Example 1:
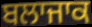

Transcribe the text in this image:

ਬਲਾਜਾਕ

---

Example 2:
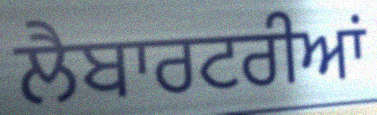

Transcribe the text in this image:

ਲੈਬਾਰਟਰੀਆਂ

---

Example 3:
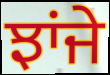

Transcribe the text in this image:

ਝਾਂਜੇ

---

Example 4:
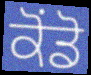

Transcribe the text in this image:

ਕੋਂਡੋ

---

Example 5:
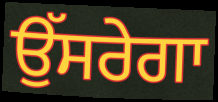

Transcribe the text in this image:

ਉੱਸਰੇਗਾ